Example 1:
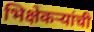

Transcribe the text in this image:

भिक्षेकऱ्यांची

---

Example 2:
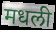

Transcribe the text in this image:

मधली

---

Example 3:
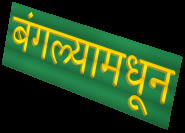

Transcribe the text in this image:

बंगल्यामधून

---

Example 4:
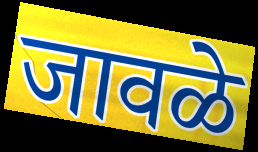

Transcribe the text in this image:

जावळे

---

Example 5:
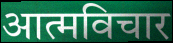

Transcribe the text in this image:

आत्मविचार